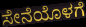
ಸೇನೆಯೊಳಗೆ